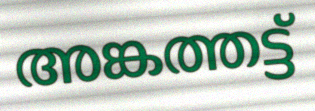
അങ്കത്തട്ട്